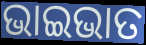
ଭାଇଭାତ